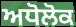
ਅਧੋਲੋਕ